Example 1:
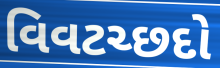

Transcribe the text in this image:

વિવટચ્છદો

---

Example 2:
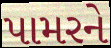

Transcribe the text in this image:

પામરને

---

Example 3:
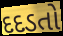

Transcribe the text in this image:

દદડતો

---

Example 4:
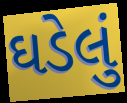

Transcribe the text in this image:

ઘડેલું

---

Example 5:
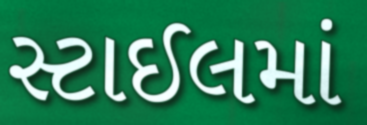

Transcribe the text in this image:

સ્ટાઈલમાં